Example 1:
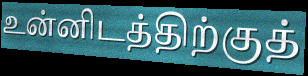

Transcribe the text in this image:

உன்னிடத்திற்குத்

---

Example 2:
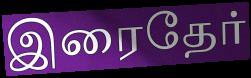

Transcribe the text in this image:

இரைதேர்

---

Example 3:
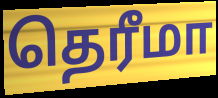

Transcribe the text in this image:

தெரீமா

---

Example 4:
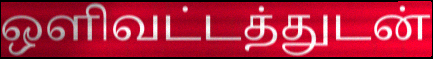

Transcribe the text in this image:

ஒளிவட்டத்துடன்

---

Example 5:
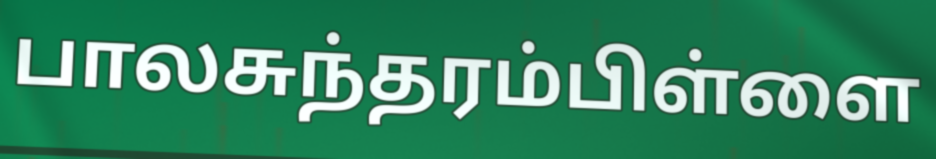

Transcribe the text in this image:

பாலசுந்தரம்பிள்ளை